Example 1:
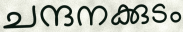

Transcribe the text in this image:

ചന്ദനക്കുടം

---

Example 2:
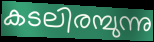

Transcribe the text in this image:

കടലിരമ്പുന്നു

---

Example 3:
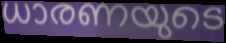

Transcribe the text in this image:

ധാരണയുടെ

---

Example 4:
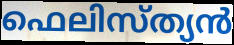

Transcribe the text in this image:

ഫെലിസ്ത്യൻ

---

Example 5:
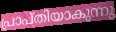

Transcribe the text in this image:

പ്രാപ്തിയാകുന്നു